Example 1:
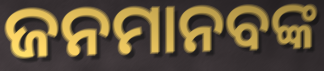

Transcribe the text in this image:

ଜନମାନବଙ୍କ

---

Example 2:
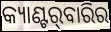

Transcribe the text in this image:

କ୍ୟାଣ୍ଟର୍‌ବାରିର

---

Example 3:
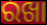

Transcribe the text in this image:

ରଖା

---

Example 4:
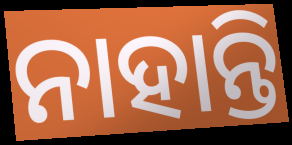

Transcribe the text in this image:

ନାହାନ୍ତି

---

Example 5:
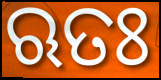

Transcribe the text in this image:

ଋତଃ